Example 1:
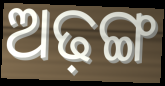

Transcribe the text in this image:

ଅଢ଼ଙ୍ଗ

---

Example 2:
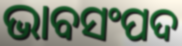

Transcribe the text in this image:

ଭାବସଂପଦ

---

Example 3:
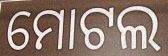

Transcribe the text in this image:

ମୋଟଲ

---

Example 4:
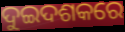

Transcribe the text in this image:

ଦୁଇଦଶକରେ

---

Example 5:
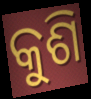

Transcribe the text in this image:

କୁଶି